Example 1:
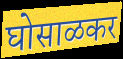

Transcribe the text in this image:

घोसाळकर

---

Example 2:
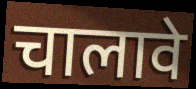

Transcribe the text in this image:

चालावे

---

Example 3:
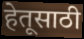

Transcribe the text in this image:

हेतूसाठी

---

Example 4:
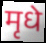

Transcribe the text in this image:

मृधे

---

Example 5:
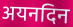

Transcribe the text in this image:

अयनदिन